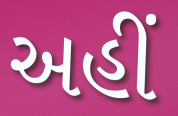
અહીં